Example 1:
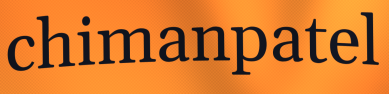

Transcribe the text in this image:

chimanpatel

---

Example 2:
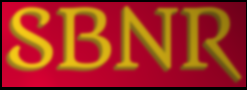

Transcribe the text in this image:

SBNR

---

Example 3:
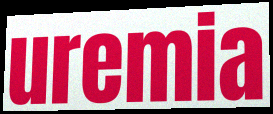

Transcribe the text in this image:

uremia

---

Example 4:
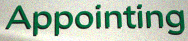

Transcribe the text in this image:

Appointing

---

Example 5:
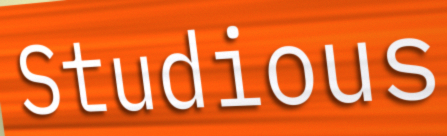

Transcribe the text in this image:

Studious